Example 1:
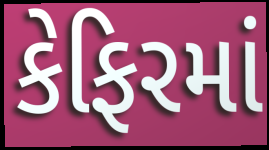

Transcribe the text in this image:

કેફિરમાં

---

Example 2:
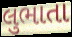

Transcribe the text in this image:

લુભાતા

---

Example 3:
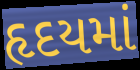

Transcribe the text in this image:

હૃદયમાં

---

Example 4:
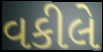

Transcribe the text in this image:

વકીલે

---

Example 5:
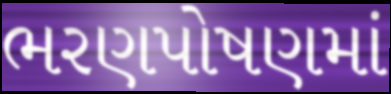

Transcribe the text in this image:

ભરણપોષણમાં